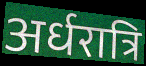
अर्धरात्रि